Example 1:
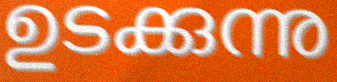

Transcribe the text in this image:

ഉടക്കുന്നു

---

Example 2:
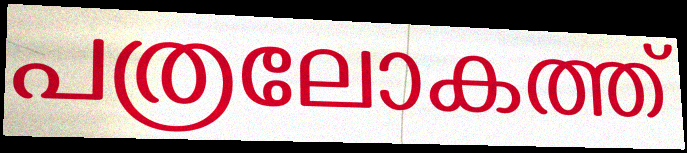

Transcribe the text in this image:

പത്രലോകത്ത്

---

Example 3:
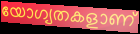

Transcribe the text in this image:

യോഗ്യതകളാണ്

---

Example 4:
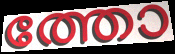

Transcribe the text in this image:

ത്തോ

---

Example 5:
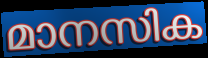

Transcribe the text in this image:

മാനസിക